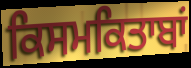
ਕਿਸਮਕਿਤਾਬਾਂ